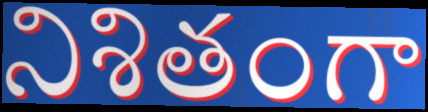
నిశితంగా